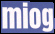
miog